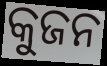
କୁଜନ